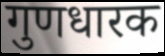
गुणधारक